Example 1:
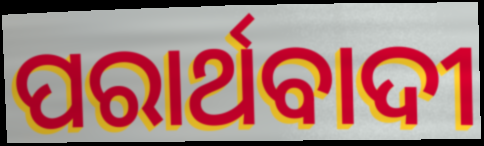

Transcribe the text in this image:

ପରାର୍ଥବାଦୀ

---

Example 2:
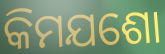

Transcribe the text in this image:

କିମଯଶୋ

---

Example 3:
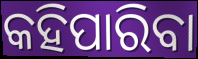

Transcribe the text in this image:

କହିପାରିବା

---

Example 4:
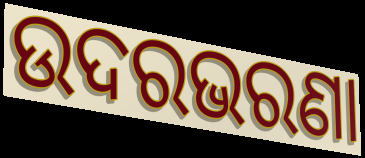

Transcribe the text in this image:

ଉଦରଭରଣା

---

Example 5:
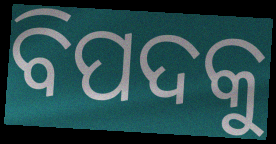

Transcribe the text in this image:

ବିପଦକୁ